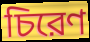
চিরেণ